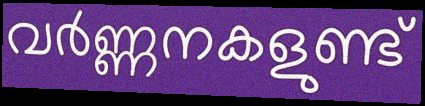
വർണ്ണനകളുണ്ട്